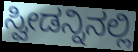
ಸ್ವೀಡನ್ನಿನಲ್ಲಿ